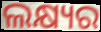
ଲକ୍ଷ୍ୟର